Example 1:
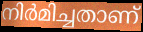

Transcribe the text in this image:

നിർമിച്ചതാണ്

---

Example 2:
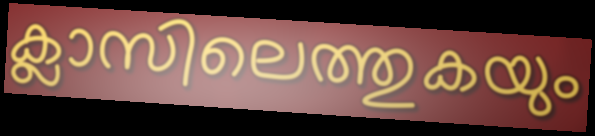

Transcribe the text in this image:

ക്ലാസിലെത്തുകയും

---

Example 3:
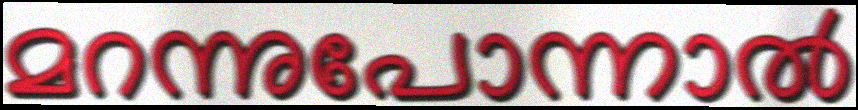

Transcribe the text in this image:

മറന്നുപോന്നാൽ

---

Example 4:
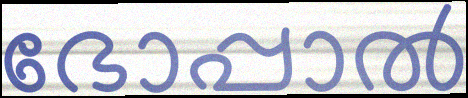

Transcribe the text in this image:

ഭോപ്പാൽ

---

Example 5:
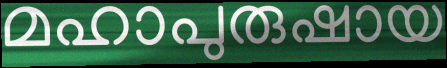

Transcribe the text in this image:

മഹാപുരുഷായ